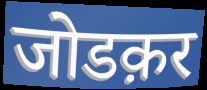
जोडक़र